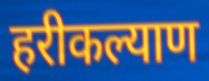
हरीकल्याण